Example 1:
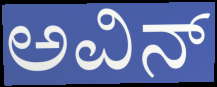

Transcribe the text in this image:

ಅವಿನ್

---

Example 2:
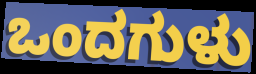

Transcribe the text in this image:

ಒಂದಗುಳು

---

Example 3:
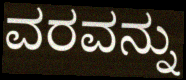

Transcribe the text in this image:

ವರವನ್ನು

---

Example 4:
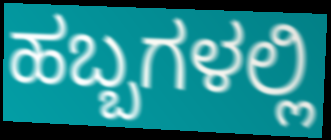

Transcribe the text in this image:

ಹಬ್ಬಗಳಲ್ಲಿ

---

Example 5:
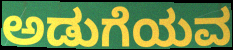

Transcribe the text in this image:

ಅಡುಗೆಯವ